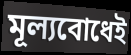
মূল্যবোধেই